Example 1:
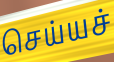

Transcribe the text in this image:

செய்யச்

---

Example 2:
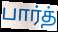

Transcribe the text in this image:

பார்த்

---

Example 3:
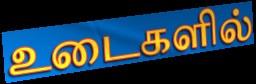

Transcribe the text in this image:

உடைகளில்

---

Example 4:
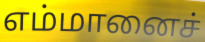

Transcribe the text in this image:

எம்மானைச்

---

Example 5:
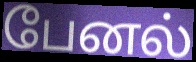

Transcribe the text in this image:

பேனல்